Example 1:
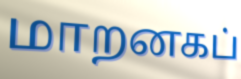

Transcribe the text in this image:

மாறனகப்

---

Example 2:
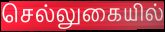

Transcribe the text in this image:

செல்லுகையில்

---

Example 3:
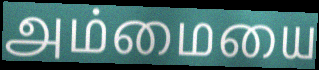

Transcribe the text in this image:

அம்மையை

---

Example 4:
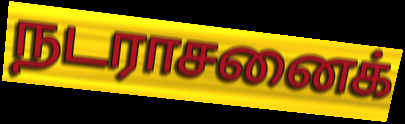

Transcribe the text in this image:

நடராசனைக்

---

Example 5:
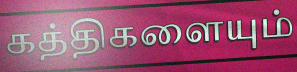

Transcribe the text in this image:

கத்திகளையும்